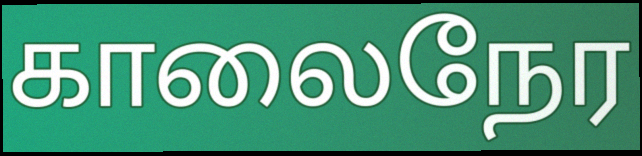
காலைநேர